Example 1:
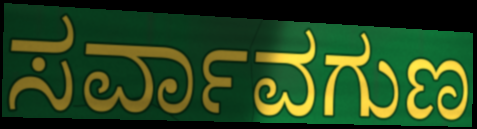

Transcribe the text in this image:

ಸರ್ವಾವಗುಣ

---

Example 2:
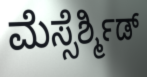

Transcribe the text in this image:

ಮೆಸ್ಸೆರ್ಶ್ಮಿಡ್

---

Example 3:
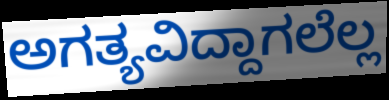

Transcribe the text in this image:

ಅಗತ್ಯವಿದ್ದಾಗಲೆಲ್ಲ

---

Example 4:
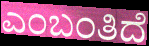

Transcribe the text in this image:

ಎಂಬಂತಿದೆ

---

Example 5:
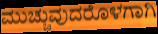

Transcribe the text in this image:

ಮುಚ್ಚುವುದರೊಳಗಾಗಿ